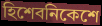
হিশেবনিকেশে